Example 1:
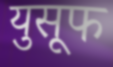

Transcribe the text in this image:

युसूफ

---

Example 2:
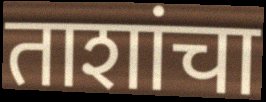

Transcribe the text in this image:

ताशांचा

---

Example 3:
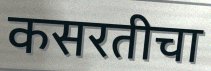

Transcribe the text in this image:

कसरतीचा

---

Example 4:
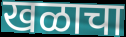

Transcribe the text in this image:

खळाचा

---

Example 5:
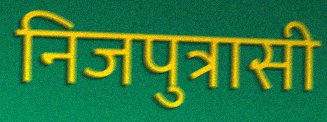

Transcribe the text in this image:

निजपुत्रासी